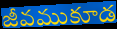
జీవముకూడ